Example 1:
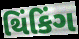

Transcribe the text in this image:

થિંકિંગ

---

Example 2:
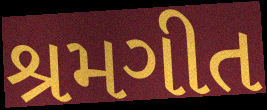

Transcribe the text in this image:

શ્રમગીત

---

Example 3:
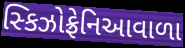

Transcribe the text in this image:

સ્કિઝોફ્રેનિઆવાળા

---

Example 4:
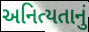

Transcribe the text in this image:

અનિત્યતાનું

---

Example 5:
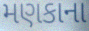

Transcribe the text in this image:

મણકાના